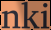
nki